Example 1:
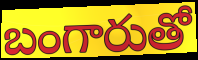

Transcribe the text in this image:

బంగారుతో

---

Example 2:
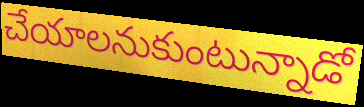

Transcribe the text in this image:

చేయాలనుకుంటున్నాడో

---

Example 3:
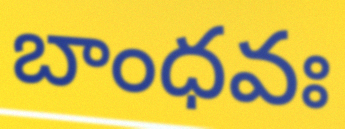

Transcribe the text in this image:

బాంధవః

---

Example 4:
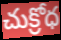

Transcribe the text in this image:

చుక్రోధ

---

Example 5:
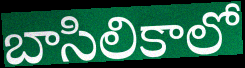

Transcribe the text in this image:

బాసిలికాలో